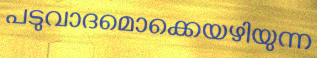
പടുവാദമൊക്കെയഴിയുന്ന